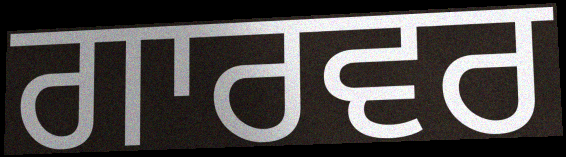
ਗਾਰਵਰ